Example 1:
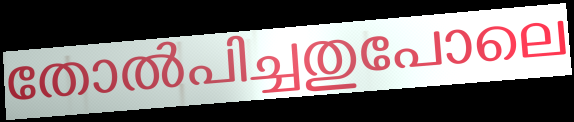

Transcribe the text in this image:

തോൽപിച്ചതുപോലെ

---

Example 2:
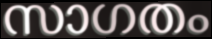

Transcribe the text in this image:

സാഗതം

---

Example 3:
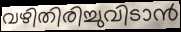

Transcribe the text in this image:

വഴിതിരിച്ചുവിടാൻ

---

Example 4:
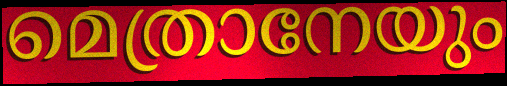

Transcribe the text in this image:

മെത്രാനേയും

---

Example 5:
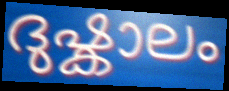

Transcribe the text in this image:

ദുഷ്കാലം